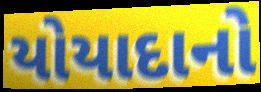
યોયાદાનો